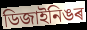
ডিজাইনিঙৰ